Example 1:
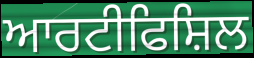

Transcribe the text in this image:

ਆਰਟੀਫਿਸ਼ਿਲ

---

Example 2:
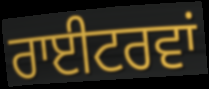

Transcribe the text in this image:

ਰਾਈਟਰਵਾਂ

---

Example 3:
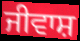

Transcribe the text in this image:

ਜੀਵਾਸ਼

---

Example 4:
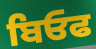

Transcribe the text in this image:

ਬਿਓਫ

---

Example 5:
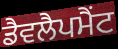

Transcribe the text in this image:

ਡੈਵਲੈਪਮੈਂਟ